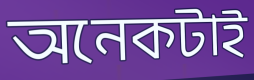
অনেকটাই